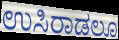
ಉಸಿರಾಡಲೂ